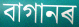
বাগানৰ